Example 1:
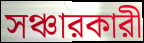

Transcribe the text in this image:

সঞ্চারকারী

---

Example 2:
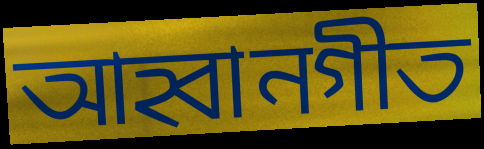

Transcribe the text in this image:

আহ্বানগীত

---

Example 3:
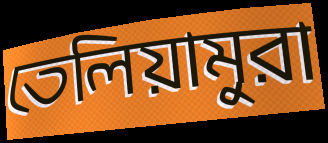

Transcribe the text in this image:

তেলিয়ামুরা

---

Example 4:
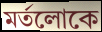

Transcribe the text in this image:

মর্তলোকে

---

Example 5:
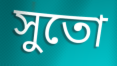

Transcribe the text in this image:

সুতো